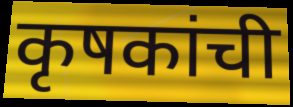
कृषकांची